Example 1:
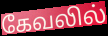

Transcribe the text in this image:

கேவலில்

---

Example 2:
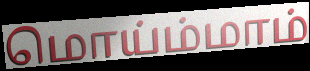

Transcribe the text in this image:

மொய்ம்மாம்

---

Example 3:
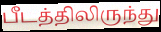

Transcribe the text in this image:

பீடத்திலிருந்து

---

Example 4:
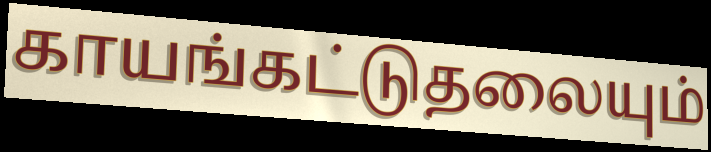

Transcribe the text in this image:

காயங்கட்டுதலையும்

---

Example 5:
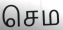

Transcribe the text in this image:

செம